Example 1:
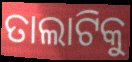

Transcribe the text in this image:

ତାଲାଟିକୁ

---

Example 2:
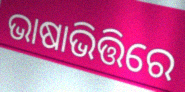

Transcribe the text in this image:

ଭାଷାଭିତ୍ତିରେ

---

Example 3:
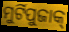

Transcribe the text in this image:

ମୁର୍ଟିପୁଜାକ୍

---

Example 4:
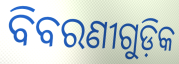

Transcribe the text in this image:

ବିବରଣୀଗୁଡ଼ିକ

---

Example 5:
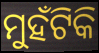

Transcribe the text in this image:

ମୁହଁଟିକି